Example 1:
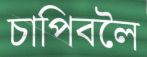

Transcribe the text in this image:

চাপিবলৈ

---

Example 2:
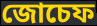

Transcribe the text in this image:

জোচেফ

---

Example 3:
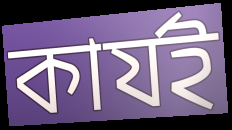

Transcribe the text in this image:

কাৰ্যই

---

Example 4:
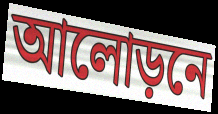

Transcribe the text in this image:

আলোড়নে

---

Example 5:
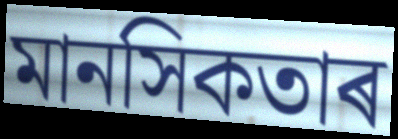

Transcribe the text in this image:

মানসিকতাৰ